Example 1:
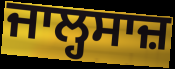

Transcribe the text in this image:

ਜਾਲ੍ਹਸਾਜ਼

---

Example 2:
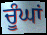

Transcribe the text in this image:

ਚੂੰਘਾਂ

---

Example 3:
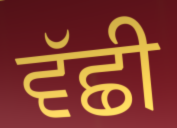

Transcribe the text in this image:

ਵੱਛੀ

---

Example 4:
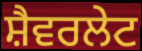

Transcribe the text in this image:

ਸ਼ੈਵਰਲੇਟ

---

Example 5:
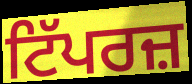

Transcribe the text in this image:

ਟਿੱਪਰਜ਼